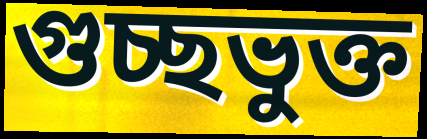
গুচ্ছভুক্ত